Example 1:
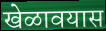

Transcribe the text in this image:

खेळावयास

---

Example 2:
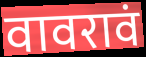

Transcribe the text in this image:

वावरावं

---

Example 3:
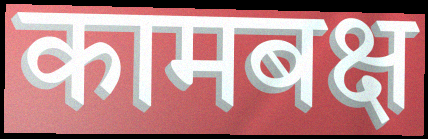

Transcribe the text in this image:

कामबक्ष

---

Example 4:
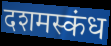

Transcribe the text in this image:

दशमस्कंध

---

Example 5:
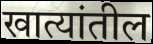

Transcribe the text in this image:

खात्यांतील